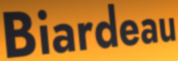
Biardeau